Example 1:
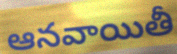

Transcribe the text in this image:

ఆనవాయితీ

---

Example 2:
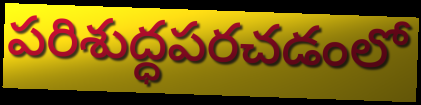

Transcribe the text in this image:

పరిశుద్ధపరచడంలో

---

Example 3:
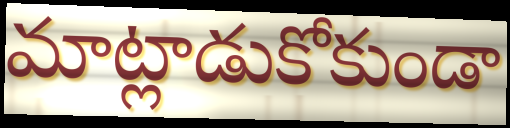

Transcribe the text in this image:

మాట్లాడుకోకుండా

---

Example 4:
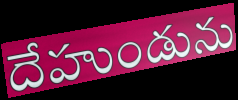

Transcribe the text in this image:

దేహుండును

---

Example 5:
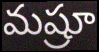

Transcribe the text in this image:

మష్రూ